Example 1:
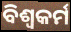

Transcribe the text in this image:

ବିଶ୍ୱକର୍ମ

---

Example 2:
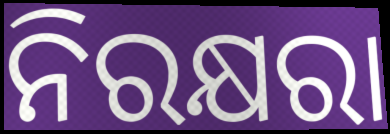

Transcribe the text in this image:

ନିରକ୍ଷରା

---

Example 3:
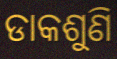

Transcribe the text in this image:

ଡାକଶୁଣି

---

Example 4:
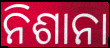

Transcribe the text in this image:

ନିଶାନା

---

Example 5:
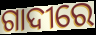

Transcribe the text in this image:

ଗାଦୀରେ